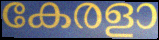
കേരളാ